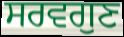
ਸਰਵਗੁਣ